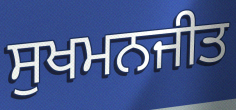
ਸੁਖਮਨਜੀਤ